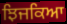
ਝਿਜਕਿਆ